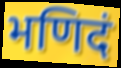
भणिदं